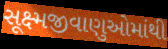
સૂક્ષ્મજીવાણુઓમાંથી